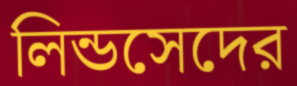
লিন্ডসেদের